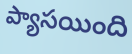
ప్యాసయింది